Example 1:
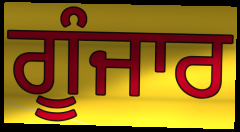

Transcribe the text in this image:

ਗੂੰਜਾਰ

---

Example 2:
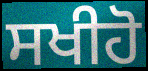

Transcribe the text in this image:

ਸਖੀਹੋ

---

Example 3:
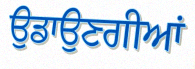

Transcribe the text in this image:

ਉਡਾਉਣਗੀਆਂ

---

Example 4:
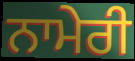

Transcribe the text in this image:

ਨਾਮੇਰੀ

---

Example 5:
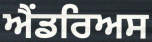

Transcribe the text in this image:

ਐਂਡਰਿਅਸ